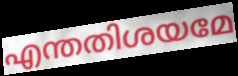
എന്തതിശയമേ